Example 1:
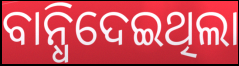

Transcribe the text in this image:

ବାନ୍ଧିଦେଇଥିଲା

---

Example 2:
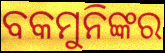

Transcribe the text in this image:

ବକମୁନିଙ୍କର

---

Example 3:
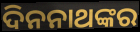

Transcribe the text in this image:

ଦିନନାଥଙ୍କର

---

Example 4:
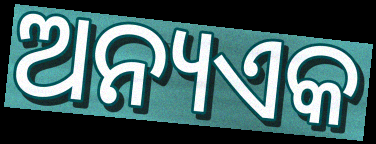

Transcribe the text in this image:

ଅନ୍ୟଏକ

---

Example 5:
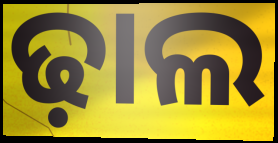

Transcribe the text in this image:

ଢ଼ାଲ